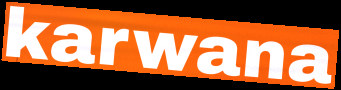
karwana